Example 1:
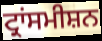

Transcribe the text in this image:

ਟ੍ਰਾਂਸਮੀਸ਼ਨ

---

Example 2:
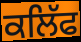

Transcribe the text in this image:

ਕਲਿੱਫ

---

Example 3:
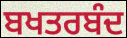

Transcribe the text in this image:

ਬਖਤਰਬੰਦ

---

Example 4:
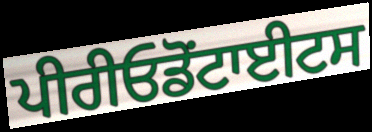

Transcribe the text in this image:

ਪੀਰੀਓਡੋਂਟਾਈਟਸ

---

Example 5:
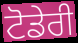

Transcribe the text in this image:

ਟੋਡੇਰੀ